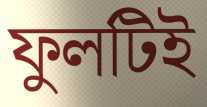
ফুলটিই